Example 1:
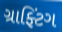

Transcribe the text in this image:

ગ્રાફ્ટિંગ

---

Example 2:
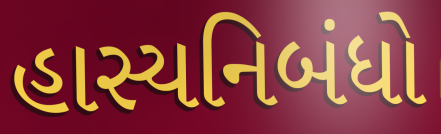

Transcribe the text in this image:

હાસ્યનિબંધો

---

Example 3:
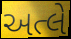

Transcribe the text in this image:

અત્લે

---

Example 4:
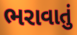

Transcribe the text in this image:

ભરાવાતું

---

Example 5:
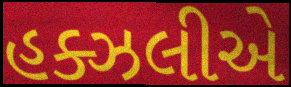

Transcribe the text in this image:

હક્ઝલીએ